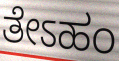
ತೇಽಹಂ